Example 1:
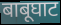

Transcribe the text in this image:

बाबूघाट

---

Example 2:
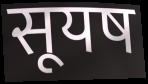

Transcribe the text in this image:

सूयष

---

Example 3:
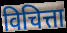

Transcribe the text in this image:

विचित्ता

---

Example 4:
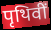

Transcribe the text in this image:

पृथिवीं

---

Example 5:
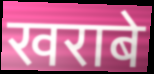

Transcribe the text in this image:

खराबे